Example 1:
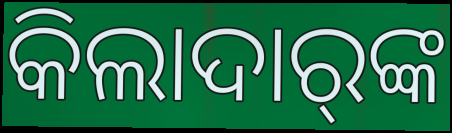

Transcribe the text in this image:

କିଲାଦାର୍‍ଙ୍କ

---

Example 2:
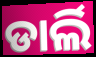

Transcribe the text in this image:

ଡାର୍ଲି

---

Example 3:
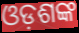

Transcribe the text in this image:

ଓଡ଼ଶଙ୍କ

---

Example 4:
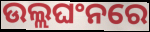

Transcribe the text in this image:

ଉଲ୍ଲଘଂନରେ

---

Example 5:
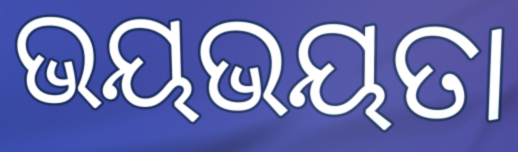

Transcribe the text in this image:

ଭୟଭୟତା